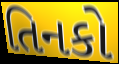
તિનકો